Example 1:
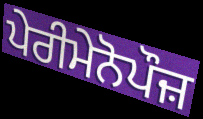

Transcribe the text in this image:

ਪੇਰੀਮੇਨੋਪੌਜ਼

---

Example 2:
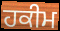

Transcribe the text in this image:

ਹਕੀਮ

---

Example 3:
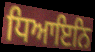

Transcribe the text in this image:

ਧਿਆਇਨਿ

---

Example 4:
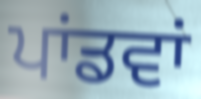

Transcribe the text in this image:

ਪਾਂਡਵਾਂ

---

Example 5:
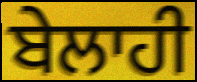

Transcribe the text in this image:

ਬੇਲਾਹੀ